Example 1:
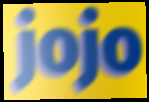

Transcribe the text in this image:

jojo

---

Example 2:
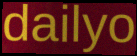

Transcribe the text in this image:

dailyo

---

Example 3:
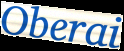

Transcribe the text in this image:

Oberai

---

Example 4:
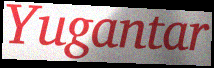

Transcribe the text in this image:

Yugantar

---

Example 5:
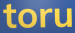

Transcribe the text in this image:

toru